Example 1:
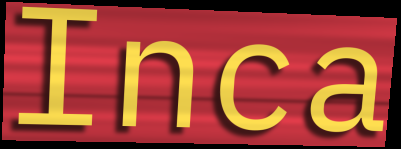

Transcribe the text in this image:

Inca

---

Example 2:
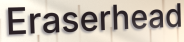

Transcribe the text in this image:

Eraserhead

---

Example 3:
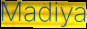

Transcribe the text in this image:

Madiya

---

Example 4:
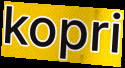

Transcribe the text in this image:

kopri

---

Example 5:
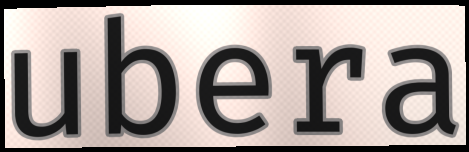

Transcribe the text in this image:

ubera